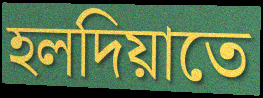
হলদিয়াতে